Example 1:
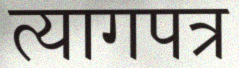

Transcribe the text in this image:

त्यागपत्र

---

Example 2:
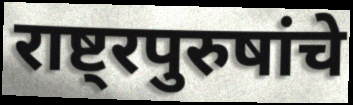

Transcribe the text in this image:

राष्ट्रपुरुषांचे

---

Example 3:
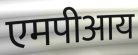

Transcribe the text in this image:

एमपीआय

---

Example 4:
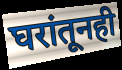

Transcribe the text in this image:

घरांतूनही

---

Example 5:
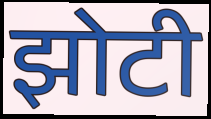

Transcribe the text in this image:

झोटी